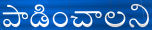
పాడించాలని